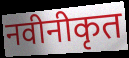
नवीनीकृत